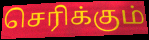
செரிக்கும்